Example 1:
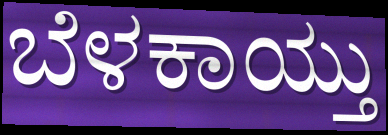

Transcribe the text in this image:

ಬೆಳಕಾಯ್ತು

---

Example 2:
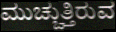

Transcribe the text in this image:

ಮುಚ್ಚುತ್ತಿರುವ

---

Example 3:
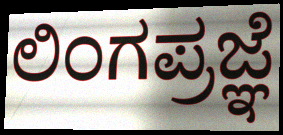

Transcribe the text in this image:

ಲಿಂಗಪ್ರಜ್ಞೆ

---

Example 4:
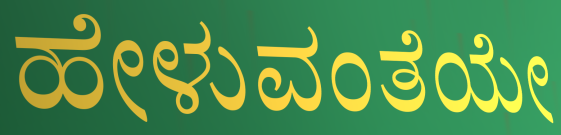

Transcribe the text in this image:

ಹೇಳುವಂತೆಯೇ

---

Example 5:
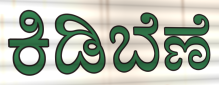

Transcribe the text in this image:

ಕಿಡಿಬೆಣೆ